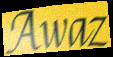
Awaz